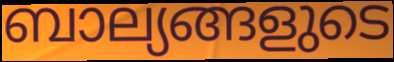
ബാല്യങ്ങളുടെ